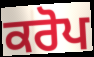
ਕਰੋਪ